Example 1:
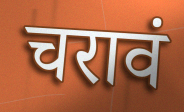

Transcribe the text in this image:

चरावं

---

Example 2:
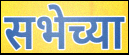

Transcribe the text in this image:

सभेच्या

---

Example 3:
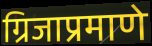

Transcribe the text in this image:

ग्रिजाप्रमाणे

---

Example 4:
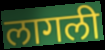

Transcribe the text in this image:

लागली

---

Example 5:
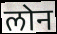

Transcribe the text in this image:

लोन